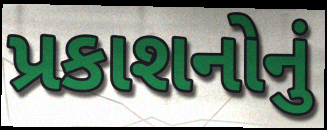
પ્રકાશનોનું